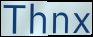
Thnx